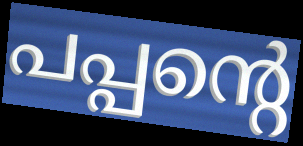
പപ്പന്റെ